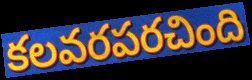
కలవరపరచింది